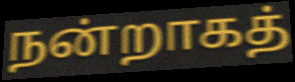
நன்றாகத்